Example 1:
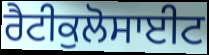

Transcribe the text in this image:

ਰੈਟੀਕੁਲੋਸਾਈਟ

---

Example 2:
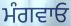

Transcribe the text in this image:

ਮੰਗਵਾਓ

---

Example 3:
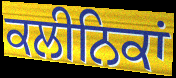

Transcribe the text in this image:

ਕਲੀਨਿਕਾਂ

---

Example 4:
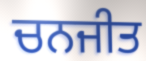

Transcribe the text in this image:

ਚਨਜੀਤ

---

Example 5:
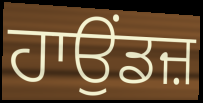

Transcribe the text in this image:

ਹਾਉਂਡਜ਼